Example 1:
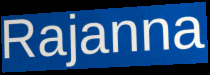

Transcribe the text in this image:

Rajanna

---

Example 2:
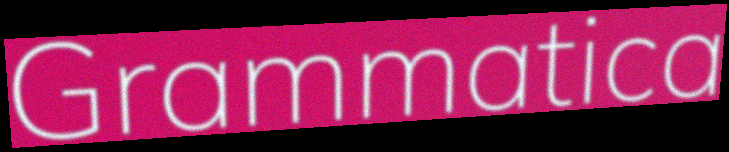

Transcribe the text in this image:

Grammatica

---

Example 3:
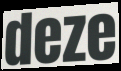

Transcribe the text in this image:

deze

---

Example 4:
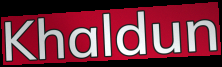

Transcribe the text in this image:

Khaldun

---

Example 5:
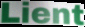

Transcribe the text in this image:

Lient